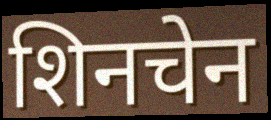
शिनचेन